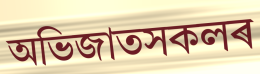
অভিজাতসকলৰ